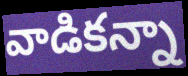
వాడికన్నా